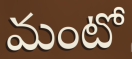
మంటో